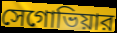
সেগোভিয়ার